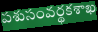
పశుసంవర్థకశాఖ